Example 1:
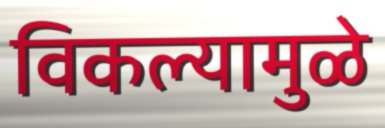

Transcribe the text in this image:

विकल्यामुळे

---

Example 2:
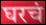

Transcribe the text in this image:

घरचं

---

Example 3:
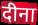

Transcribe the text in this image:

दीना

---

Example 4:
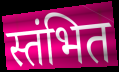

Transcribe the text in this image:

स्तंभित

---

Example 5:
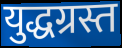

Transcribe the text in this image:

युद्धग्रस्त